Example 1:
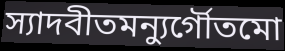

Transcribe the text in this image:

স্যাদবীতমন্যুর্গৌতমো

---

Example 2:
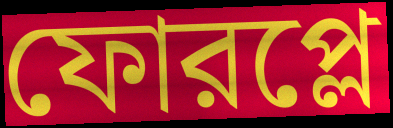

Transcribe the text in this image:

ফোরপ্লে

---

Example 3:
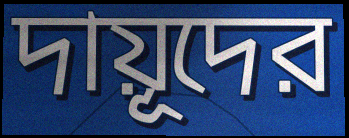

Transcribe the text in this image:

দায়ূদের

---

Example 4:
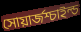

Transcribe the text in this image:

সোয়ার্জশ্চাইল্ড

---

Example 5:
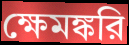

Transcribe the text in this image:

ক্ষেমঙ্করি